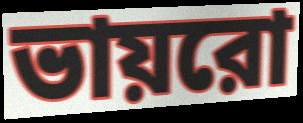
ভায়রো